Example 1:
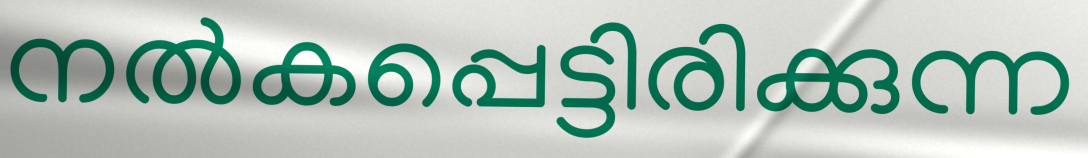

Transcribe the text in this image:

നൽകപ്പെട്ടിരിക്കുന്ന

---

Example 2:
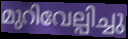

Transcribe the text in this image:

മുറിവേല്പിച്ചു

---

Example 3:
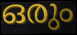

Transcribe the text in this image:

ഒരും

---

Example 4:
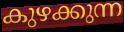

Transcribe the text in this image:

കുഴക്കുന്ന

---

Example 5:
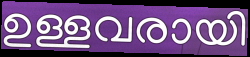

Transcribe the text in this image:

ഉള്ളവരായി